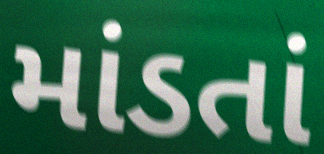
માંડતાં